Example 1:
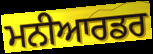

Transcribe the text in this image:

ਮਨੀਆਰਡਰ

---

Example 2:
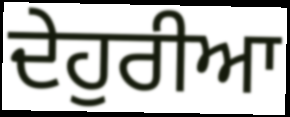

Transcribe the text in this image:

ਦੇਹੁਰੀਆ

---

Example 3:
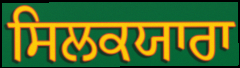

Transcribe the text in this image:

ਸਿਲਕਯਾਰਾ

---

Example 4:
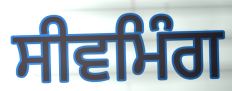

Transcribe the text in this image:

ਸੀਵਮਿੰਗ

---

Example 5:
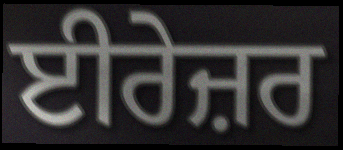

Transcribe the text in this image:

ਈਰੇਜ਼ਰ